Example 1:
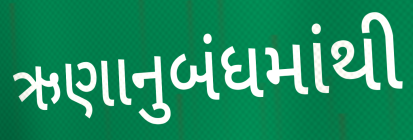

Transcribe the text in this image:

ઋણાનુબંધમાંથી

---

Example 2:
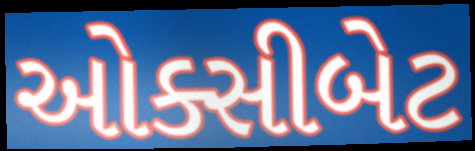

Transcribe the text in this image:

ઓક્સીબેટ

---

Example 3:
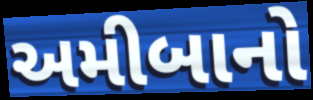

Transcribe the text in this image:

અમીબાનો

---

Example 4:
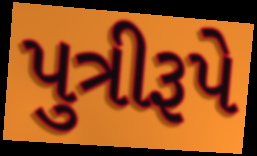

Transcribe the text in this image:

પુત્રીરૂપે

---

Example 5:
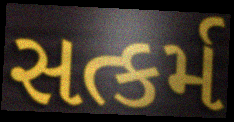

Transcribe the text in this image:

સત્કર્મ